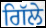
ਗਿੱਲੇ